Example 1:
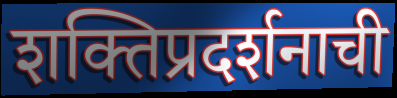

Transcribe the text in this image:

शक्तिप्रदर्शनाची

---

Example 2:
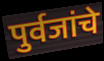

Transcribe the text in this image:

पुर्वजांचे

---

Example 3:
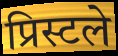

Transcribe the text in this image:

प्रिस्टले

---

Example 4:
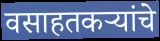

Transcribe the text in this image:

वसाहतकऱ्यांचे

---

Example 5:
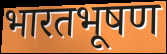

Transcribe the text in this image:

भारतभूषण